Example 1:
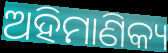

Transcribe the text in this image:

ଅହିମାଣିକ୍ୟ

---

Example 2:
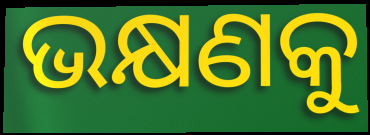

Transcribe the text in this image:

ଭକ୍ଷଣକୁ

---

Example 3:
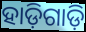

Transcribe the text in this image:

ହାଡ଼ିଗାଡ଼ି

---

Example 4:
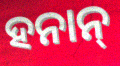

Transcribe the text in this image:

ହନାନ୍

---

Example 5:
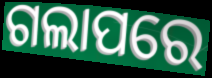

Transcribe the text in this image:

ଗଲାପରେ